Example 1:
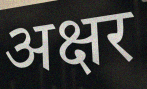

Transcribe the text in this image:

अक्षर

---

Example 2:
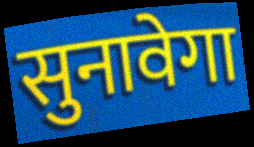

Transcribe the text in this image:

सुनावेगा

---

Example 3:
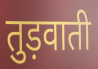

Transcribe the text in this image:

तुड़वाती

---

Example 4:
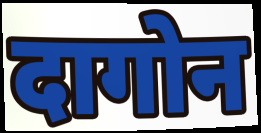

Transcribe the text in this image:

दागोन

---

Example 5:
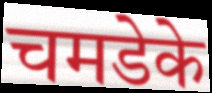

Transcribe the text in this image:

चमडेके